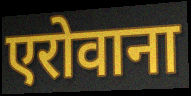
एरोवाना